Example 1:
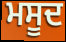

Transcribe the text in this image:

ਮਸੂਦ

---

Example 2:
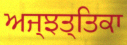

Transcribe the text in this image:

ਅਜ੍ਝਤ੍ਤਿਕਾ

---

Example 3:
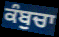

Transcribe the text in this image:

ਕੰਬੁਚਾ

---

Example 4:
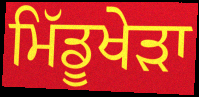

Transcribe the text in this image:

ਮਿੱਡੂਖੇੜਾ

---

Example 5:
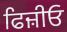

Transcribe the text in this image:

ਫਿਜ਼ੀਓ